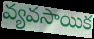
వ్యవసాయిక